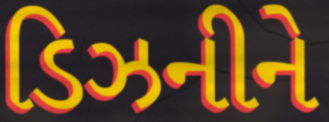
ડિઝનીને